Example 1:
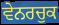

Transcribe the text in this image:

ਵੇਨਰਚੁਕ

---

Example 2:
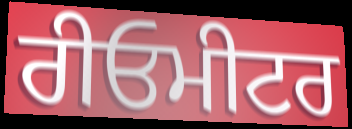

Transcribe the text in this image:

ਰੀਓਮੀਟਰ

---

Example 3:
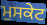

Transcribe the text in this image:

ਮੁਸਕੇਟ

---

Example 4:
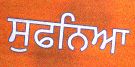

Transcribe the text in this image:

ਸੁਫਨਿਆ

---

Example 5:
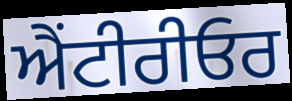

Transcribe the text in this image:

ਐਂਟੀਰੀਓਰ